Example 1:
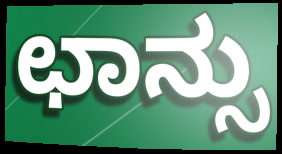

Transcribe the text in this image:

ಛಾನ್ಸು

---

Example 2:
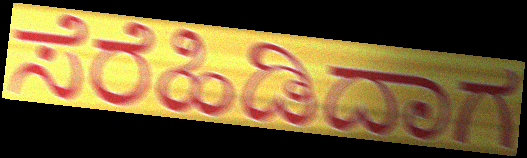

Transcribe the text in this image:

ಸೆರೆಹಿಡಿದಾಗ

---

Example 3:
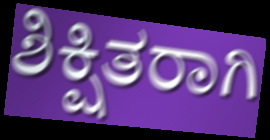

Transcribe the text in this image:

ಶಿಕ್ಷಿತರಾಗಿ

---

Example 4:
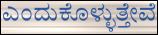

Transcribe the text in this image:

ಎಂದುಕೊಳ್ಳುತ್ತೇವೆ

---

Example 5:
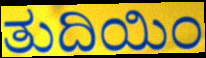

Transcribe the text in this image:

ತುದಿಯಿಂ